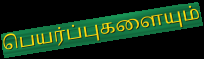
பெயர்ப்புகளையும்